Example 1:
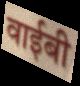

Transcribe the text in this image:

वाईबी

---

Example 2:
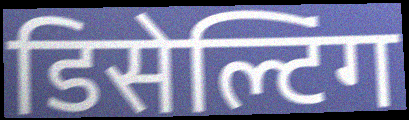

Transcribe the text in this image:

डिसेल्टिंग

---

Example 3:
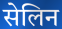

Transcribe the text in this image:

सेलिन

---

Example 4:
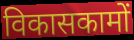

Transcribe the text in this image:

विकासकामों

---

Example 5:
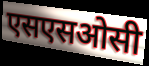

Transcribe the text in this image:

एसएसओसी